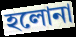
হলোনা